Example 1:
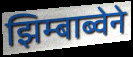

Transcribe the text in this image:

झिम्बाब्वेने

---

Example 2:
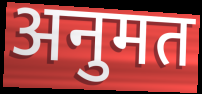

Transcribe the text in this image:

अनुमत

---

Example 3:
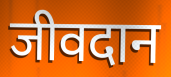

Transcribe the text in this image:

जीवदान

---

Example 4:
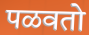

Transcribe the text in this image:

पळवतो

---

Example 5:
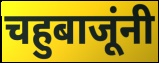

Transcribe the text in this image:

चहुबाजूंनी